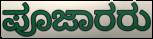
ಪೂಜಾರರು